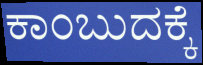
ಕಾಂಬುದಕ್ಕೆ